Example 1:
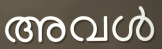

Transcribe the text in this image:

അവൾ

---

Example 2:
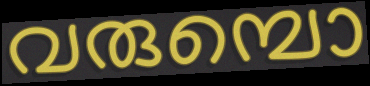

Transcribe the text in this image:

വരുമ്പൊ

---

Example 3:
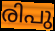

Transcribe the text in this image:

രിപു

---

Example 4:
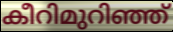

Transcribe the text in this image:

കീറിമുറിഞ്ഞ്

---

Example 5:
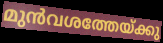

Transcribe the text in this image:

മുൻവശത്തേയ്ക്കു